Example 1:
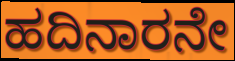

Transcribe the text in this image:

ಹದಿನಾರನೇ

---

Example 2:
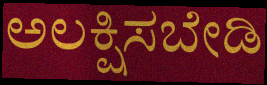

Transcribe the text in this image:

ಅಲಕ್ಷಿಸಬೇಡಿ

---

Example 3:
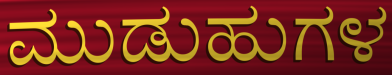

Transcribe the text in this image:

ಮುಡುಹುಗಳ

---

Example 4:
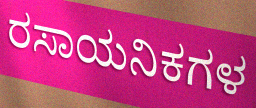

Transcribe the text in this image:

ರಸಾಯನಿಕಗಳ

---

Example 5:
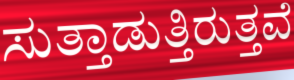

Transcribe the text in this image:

ಸುತ್ತಾಡುತ್ತಿರುತ್ತವೆ